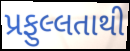
પ્રફુલ્લતાથી